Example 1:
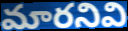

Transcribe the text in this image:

మారనివి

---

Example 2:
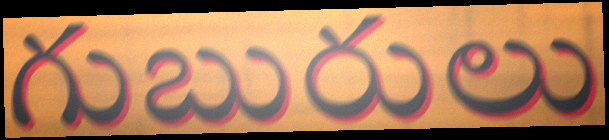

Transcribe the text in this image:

గుబురులు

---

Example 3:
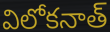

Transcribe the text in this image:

విలోకనాత్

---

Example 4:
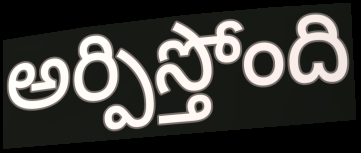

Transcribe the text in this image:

అర్పిస్తోంది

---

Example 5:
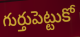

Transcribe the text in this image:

గుర్తుపెట్టుకో